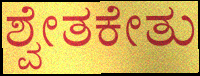
ಶ್ವೇತಕೇತು